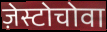
ज़ेस्टोचोवा